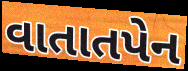
વાતાતપેન